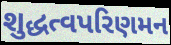
શુદ્ધત્વપરિણમન